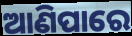
ଆଣିପାରେ